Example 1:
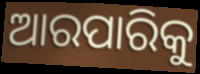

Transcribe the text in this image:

ଆରପାରିକୁ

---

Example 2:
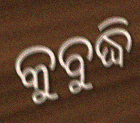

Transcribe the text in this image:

କୁବୁଦ୍ଧି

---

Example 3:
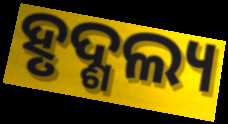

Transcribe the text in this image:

ହୃଦ୍ଶଲ୍ୟ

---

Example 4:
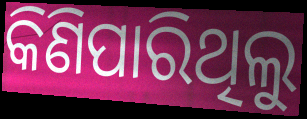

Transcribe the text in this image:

କିଣିପାରିଥିଲୁ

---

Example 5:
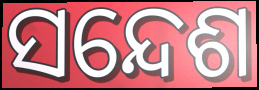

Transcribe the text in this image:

ସନ୍ଦେଶ